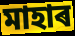
মাহাৰ